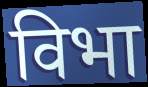
विभा